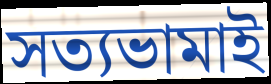
সত্যভামাই